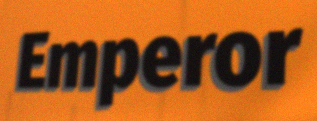
Emperor